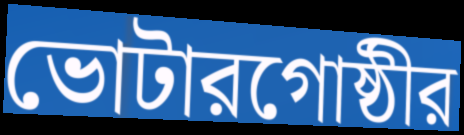
ভোটারগোষ্ঠীর